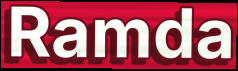
Ramda